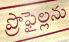
ప్రొఫైల్లను